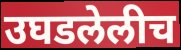
उघडलेलीच